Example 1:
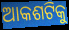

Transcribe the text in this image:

ଆକଶଟିକୁ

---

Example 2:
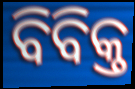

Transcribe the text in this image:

ବିବିକ୍ତ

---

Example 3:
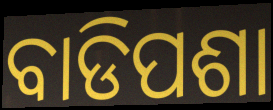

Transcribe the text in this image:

ବାଡିପଶା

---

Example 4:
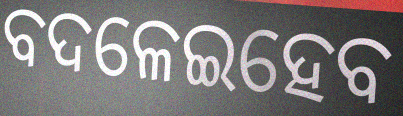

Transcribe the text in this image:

ବଦଳେଇହେବ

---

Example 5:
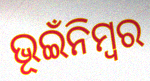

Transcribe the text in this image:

ଭୂଇଁନିମ୍ବର